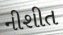
નીશીત